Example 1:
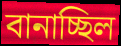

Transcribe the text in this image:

বানাচ্ছিল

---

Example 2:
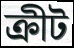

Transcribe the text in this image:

ক্রীট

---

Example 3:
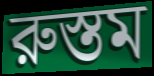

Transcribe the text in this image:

রুস্তম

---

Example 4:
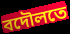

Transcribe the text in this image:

বদৌলতে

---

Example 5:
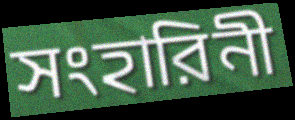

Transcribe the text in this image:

সংহারিনী